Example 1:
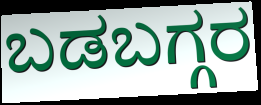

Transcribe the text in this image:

ಬಡಬಗ್ಗರ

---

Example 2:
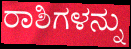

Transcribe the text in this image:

ರಾಶಿಗಳನ್ನು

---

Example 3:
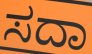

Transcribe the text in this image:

ಸದಾ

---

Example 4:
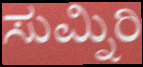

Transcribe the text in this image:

ಸುಮ್ನಿರಿ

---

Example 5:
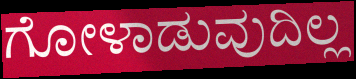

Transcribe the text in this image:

ಗೋಳಾಡುವುದಿಲ್ಲ